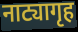
नाट्यागृह